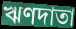
ঋণদাতা